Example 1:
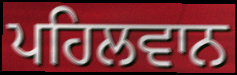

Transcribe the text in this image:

ਪਹਿਲਵਾਨ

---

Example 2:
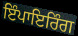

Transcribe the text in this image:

ਇੰਪਾਇਰਿੰਗ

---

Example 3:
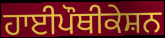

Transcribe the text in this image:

ਹਾਈਪੌਥੀਕੇਸ਼ਨ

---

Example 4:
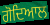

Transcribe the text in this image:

ਗੋਦਿਆਲ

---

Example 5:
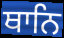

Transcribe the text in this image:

ਥਾਨਿ